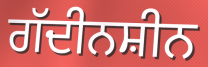
ਗੱਦੀਨਸ਼ੀਨ